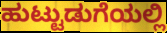
ಹುಟ್ಟುಡುಗೆಯಲ್ಲಿ